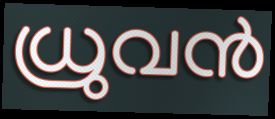
ധ്രുവൻ